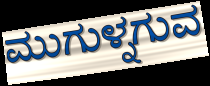
ಮುಗುಳ್ನಗುವ